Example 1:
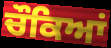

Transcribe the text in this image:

ਚੌਕਿਆਂ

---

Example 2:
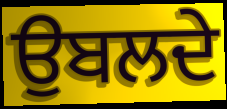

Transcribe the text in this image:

ਉਬਲਦੇ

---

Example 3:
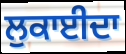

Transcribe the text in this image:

ਲੁਕਾਈਦਾ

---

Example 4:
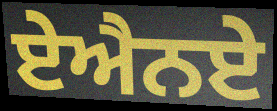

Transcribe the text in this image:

ਏਐਨਏ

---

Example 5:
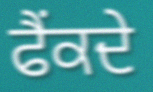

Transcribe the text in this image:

ਫੈਂਕਦੇ